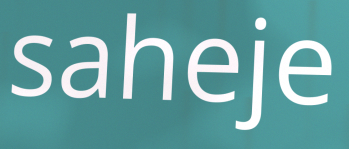
saheje